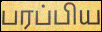
பரப்பிய